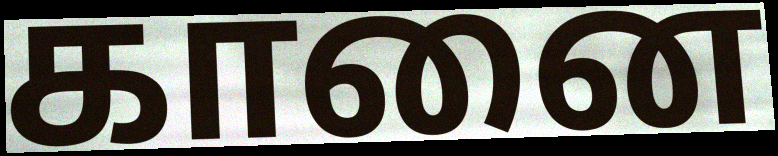
கானை